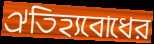
ঐতিহ্যবোধের